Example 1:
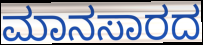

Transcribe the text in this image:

ಮಾನಸಾರದ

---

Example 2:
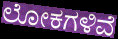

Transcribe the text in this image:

ಲೋಕಗಳಿವೆ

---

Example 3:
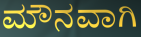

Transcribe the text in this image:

ಮೌನವಾಗಿ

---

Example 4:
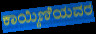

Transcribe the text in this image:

ಕಾಯ್ಕಿಣಿಯವರ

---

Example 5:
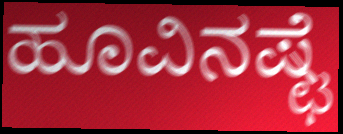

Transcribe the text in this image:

ಹೂವಿನಷ್ಟೆ